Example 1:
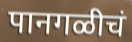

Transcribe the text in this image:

पानगळीचं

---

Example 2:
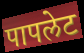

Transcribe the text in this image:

पापलेट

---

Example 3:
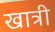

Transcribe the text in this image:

खात्री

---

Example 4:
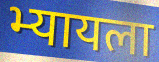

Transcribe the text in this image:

भ्यायला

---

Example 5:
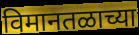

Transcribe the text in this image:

विमानतळाच्या